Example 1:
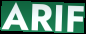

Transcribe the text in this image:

ARIF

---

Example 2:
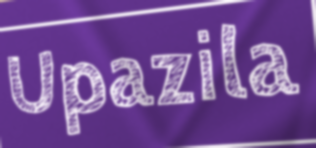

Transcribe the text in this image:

Upazila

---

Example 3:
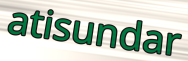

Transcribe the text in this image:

atisundar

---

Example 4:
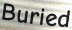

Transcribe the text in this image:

Buried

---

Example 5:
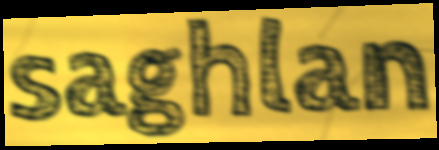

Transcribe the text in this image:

saghlan